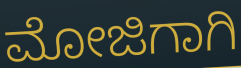
ಮೋಜಿಗಾಗಿ